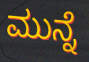
ಮುನ್ನೆ